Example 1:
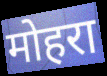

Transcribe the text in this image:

मोहरा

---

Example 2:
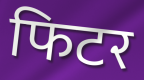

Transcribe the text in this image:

फिटर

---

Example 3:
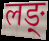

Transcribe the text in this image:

लङ्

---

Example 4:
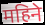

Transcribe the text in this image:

महिने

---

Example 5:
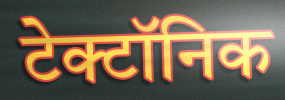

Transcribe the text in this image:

टेक्टॉनिक